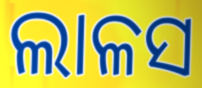
ଲାଳସ